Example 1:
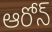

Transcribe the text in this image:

ఆరోన్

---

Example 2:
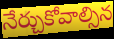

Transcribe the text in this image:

నేర్చుకోవాల్సిన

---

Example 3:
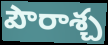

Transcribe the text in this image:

పౌరాశ్చ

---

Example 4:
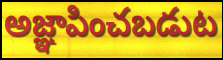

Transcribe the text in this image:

అజ్ఞాపించబడుట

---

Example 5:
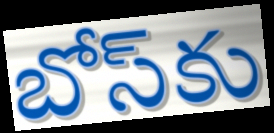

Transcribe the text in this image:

బోస్‌కు